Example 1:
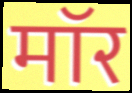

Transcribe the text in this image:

मॉर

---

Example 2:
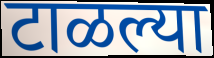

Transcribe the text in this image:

टाळल्या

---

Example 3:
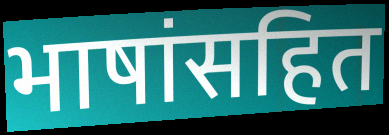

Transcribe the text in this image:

भाषांसहित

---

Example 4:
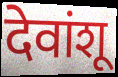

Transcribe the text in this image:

देवांशू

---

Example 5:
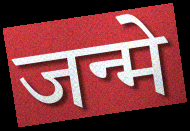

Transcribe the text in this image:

जन्मे